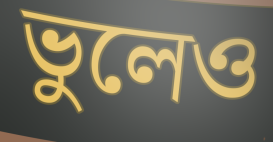
ভুলেও